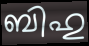
ബിഹു